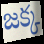
జక్క